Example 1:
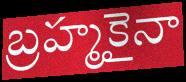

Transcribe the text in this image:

బ్రహ్మకైనా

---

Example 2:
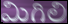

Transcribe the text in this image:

మిగిలి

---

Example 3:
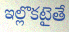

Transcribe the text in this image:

ఇల్లొకటైతే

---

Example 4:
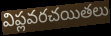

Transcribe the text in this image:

విప్లవరచయితలు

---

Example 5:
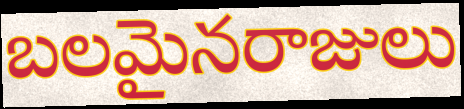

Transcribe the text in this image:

బలమైనరాజులు